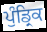
ਪੁੰਡ੍ਰਿਕ